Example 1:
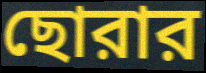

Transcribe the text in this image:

ছোরার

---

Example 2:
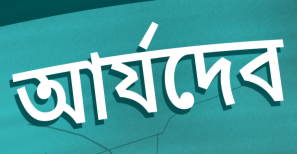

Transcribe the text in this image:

আর্যদেব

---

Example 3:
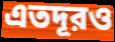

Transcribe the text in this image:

এতদূরও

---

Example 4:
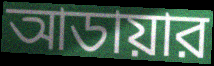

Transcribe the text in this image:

আডায়ার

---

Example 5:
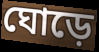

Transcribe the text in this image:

ঘোড়ে